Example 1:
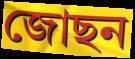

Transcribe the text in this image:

জোছন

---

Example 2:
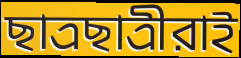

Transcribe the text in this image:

ছাত্রছাত্রীরাই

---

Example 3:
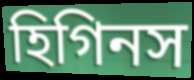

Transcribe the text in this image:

হিগিনস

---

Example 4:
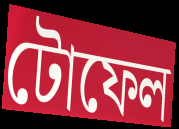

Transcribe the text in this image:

টোফেল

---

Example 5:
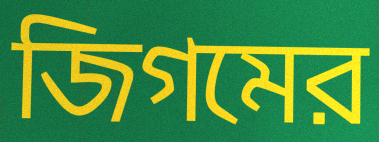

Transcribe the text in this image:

জিগমের